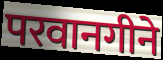
परवानगीने